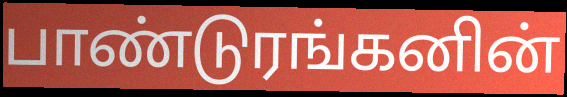
பாண்டுரங்கனின்